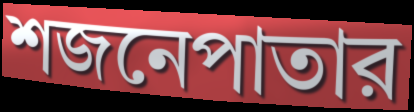
শজনেপাতার